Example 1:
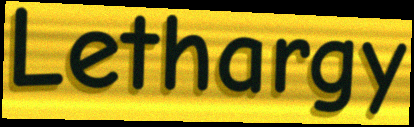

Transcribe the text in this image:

Lethargy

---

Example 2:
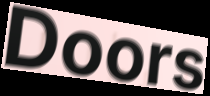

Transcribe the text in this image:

Doors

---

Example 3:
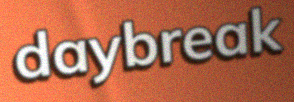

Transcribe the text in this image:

daybreak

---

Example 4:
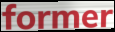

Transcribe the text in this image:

former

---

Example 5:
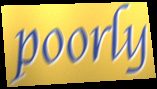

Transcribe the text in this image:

poorly